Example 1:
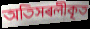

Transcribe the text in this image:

অতিসৰলীকৃত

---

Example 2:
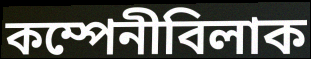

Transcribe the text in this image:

কম্পেনীবিলাক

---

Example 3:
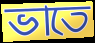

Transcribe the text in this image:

ভাতে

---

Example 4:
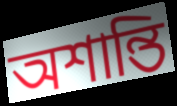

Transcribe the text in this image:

অশান্তি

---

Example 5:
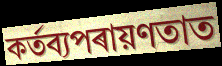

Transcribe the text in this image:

কৰ্তব্যপৰায়ণতাত